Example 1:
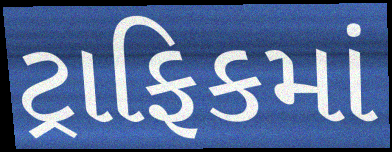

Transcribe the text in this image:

ટ્રાફિકમાં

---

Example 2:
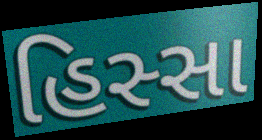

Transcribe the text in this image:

હિસ્સા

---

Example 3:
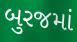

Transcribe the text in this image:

બુરજમાં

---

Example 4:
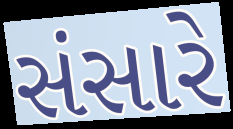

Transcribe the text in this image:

સંસારે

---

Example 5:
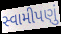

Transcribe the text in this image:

સ્વામીપણું